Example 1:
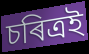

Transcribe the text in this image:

চৰিত্ৰই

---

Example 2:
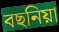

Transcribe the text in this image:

বছনিয়া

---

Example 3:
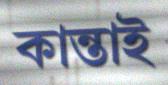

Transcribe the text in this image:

কান্তাই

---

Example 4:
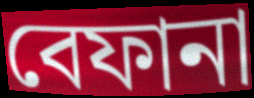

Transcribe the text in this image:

বেফানা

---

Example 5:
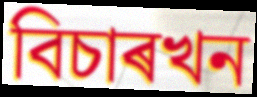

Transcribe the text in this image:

বিচাৰখন